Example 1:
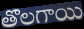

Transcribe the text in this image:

తొలగాయి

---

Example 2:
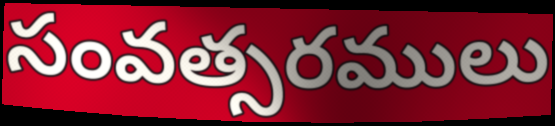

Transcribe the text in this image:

సంవత్సరములు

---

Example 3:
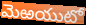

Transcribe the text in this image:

మెఱయుటో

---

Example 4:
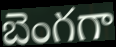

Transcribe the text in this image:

బెంగగా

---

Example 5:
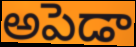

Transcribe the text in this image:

అపెడా